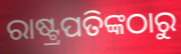
ରାଷ୍ଟ୍ରପତିଙ୍କଠାରୁ